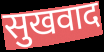
सुखवाद